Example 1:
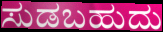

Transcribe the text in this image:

ಸುಡಬಹುದು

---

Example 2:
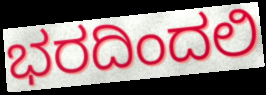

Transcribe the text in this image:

ಭರದಿಂದಲಿ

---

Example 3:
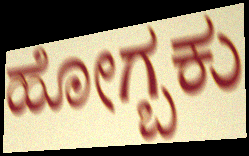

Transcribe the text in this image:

ಹೋಗ್ಬಕು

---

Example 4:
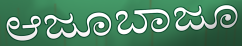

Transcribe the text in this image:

ಆಜೂಬಾಜೂ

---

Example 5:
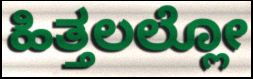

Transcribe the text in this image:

ಹಿತ್ತಲಲ್ಲೋ